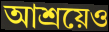
আশ্রয়েও